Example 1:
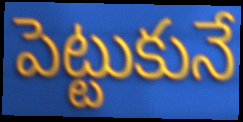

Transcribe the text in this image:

పెట్టుకునే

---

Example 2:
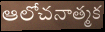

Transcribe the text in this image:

ఆలోచనాత్మక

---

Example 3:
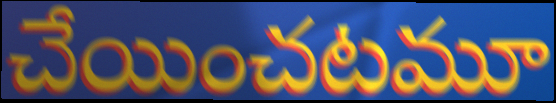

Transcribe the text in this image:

చేయించటమూ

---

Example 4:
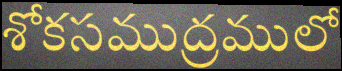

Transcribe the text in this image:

శోకసముద్రములో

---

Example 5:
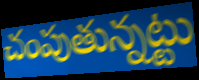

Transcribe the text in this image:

చంపుతున్నట్టు